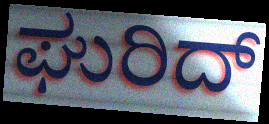
ಘುರಿದ್